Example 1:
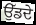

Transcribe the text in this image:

ਉੱਡਦੇ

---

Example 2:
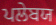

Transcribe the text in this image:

ਪਲੇਬਯ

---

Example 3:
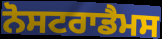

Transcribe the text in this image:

ਨੋਸਟਰਾਡੈਮਸ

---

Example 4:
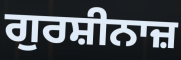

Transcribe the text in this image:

ਗੁਰਸ਼ੀਨਾਜ਼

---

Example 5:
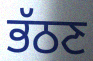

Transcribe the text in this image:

ਭੱਠਣ